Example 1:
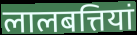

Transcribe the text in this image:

लालबत्तियां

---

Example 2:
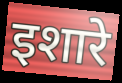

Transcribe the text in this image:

इशारे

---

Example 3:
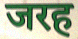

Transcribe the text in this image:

जरह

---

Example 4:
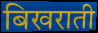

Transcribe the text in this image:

बिखराती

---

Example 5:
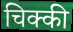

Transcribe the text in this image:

चिक्की